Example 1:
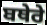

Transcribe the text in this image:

ਬਥੇਰੇ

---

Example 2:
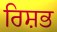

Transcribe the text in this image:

ਰਿਸ਼ਭ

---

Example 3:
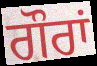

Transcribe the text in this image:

ਗੌਰਾਂ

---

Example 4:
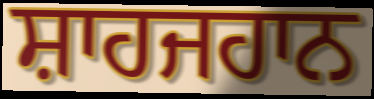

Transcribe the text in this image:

ਸ਼ਾਹਜਹਾਨ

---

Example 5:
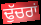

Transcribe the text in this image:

ਢੁੱਚਰਾਂ